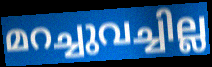
മറച്ചുവച്ചില്ല